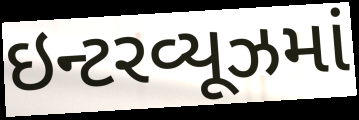
ઇન્ટરવ્યૂઝમાં